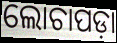
ଲୋଚାପଡ଼ା